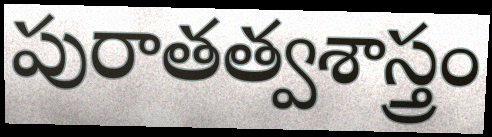
పురాతత్వశాస్త్రం